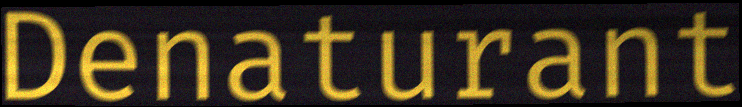
Denaturant